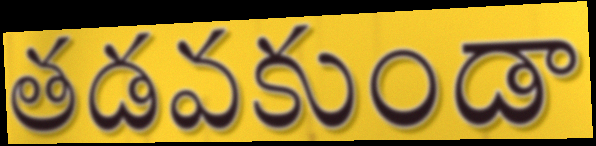
తడవకుండా